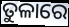
ତୁଳାରେ